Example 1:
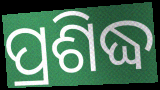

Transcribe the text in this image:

ପ୍ରଶିଦ୍ଧ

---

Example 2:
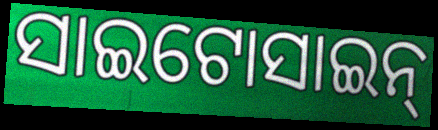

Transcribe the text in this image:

ସାଇଟୋସାଇନ୍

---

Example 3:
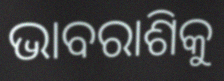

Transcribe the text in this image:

ଭାବରାଶିକୁ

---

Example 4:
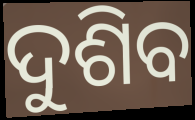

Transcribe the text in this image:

ଦୁଶିବ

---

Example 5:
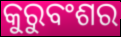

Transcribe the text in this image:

କୁରୁବଂଶର